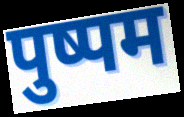
पुष्पम